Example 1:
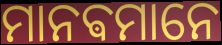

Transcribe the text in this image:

ମାନଵମାନେ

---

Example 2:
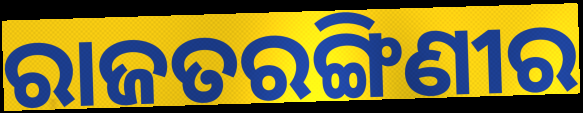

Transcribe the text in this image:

ରାଜତରଙ୍ଗିଣୀର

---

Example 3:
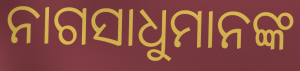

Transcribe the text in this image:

ନାଗସାଧୁମାନଙ୍କ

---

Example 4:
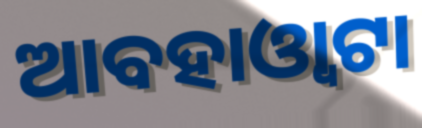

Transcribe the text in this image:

ଆବହାଓ୍ୱାଟା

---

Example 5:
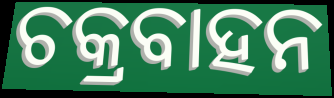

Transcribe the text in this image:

ଚକ୍ରବାହନ